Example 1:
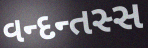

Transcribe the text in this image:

વન્દન્તસ્સ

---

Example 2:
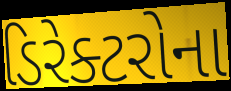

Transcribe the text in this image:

ડિરેક્ટરોના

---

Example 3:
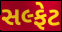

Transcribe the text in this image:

સલ્ફેટ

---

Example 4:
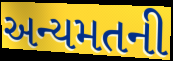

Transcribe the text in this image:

અન્યમતની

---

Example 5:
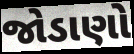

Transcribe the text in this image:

જોડાણો